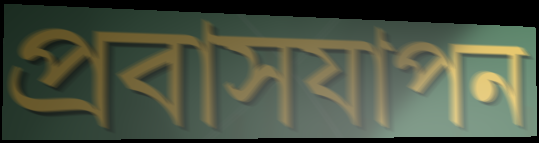
প্রবাসযাপন